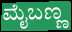
ಮೈಬಣ್ಣ